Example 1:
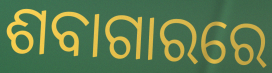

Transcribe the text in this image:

ଶବାଗାରରେ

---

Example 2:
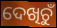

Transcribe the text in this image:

ଦେଖିଚୁଁ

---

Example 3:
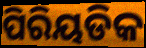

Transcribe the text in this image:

ପିରିୟଡିକ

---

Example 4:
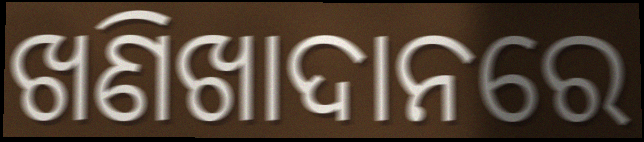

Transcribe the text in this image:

ଖଣିଖାଦାନରେ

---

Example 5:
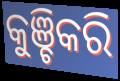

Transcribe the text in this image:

କୁଞ୍ଚିକରି